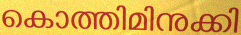
കൊത്തിമിനുക്കി